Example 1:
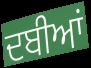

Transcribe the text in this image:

ਦਬੀਆਂ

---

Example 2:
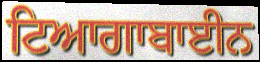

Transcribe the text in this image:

ਟਿਆਗਾਬਾਈਨ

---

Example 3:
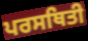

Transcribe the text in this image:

ਪਰਸਥਿਤੀ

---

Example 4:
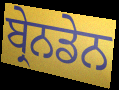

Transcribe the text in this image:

ਬ੍ਰੇਨਡੇਨ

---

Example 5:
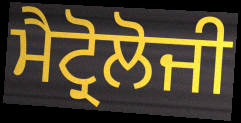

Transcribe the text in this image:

ਮੈਟ੍ਰੋਲੋਜੀ